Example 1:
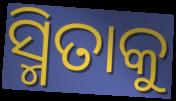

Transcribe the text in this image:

ସ୍ମିତାକୁ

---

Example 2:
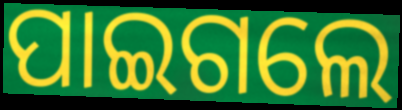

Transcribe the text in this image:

ପାଇଗଲେ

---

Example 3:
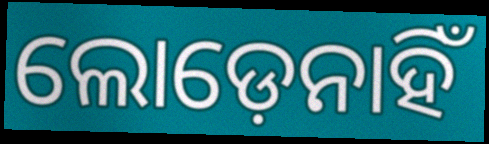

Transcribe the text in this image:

ଲୋଡ଼େନାହିଁ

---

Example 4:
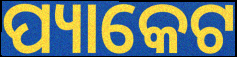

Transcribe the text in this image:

ପ୍ୟାକେଟ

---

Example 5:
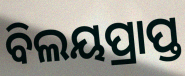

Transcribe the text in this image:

ବିଲୟପ୍ରାପ୍ତ